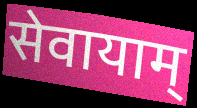
सेवायाम्